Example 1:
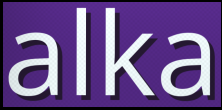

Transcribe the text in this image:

alka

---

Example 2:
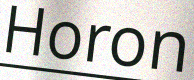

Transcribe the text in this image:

Horon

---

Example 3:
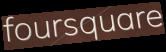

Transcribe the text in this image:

foursquare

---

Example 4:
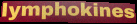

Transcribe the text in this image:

lymphokines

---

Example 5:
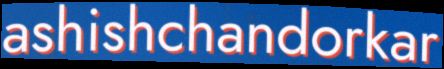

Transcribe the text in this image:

ashishchandorkar